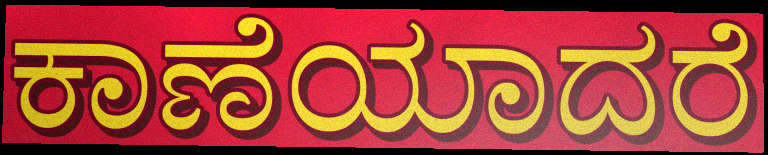
ಕಾಣೆಯಾದರೆ